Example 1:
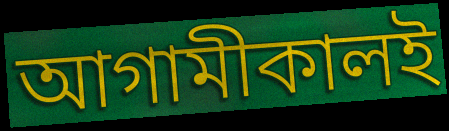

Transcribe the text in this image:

আগামীকালই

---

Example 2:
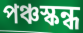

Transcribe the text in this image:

পঞ্চস্কন্ধ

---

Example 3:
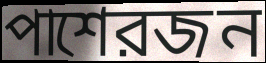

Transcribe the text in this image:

পাশেরজন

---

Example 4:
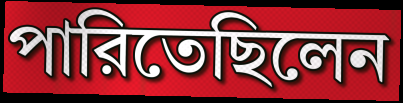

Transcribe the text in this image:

পারিতেছিলেন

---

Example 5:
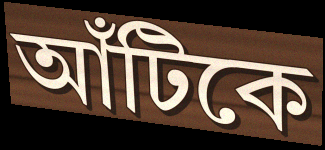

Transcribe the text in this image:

আঁটিকে